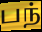
பந்